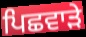
ਪਿਛਵਾੜੇ